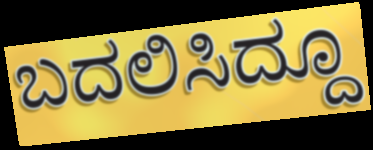
ಬದಲಿಸಿದ್ದೂ